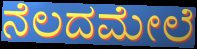
ನೆಲದಮೇಲೆ